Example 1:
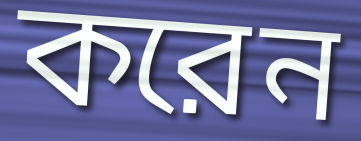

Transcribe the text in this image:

করেন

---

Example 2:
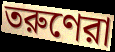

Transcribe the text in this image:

তরুণেরা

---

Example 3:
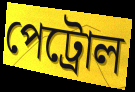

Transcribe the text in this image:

পেট্রোল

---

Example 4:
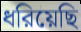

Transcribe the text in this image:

ধরিয়েছি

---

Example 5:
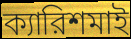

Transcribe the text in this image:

ক্যারিশমাই